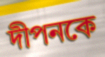
দীপনকে